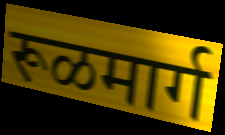
रूळमार्ग